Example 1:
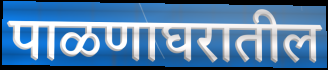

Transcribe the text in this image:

पाळणाघरातील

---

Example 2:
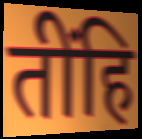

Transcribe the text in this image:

तींहि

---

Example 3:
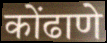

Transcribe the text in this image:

कोंढाणे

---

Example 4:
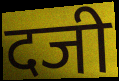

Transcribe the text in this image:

दजी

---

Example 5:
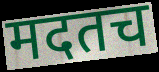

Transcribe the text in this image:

मदतच